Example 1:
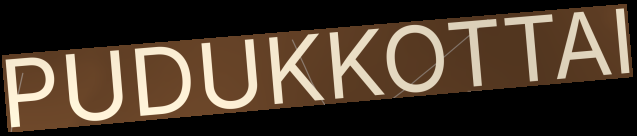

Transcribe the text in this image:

PUDUKKOTTAI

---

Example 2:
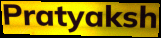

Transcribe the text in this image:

Pratyaksh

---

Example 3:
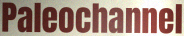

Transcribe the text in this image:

Paleochannel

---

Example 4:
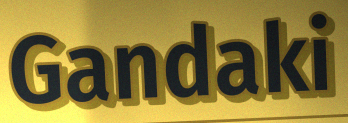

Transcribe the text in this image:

Gandaki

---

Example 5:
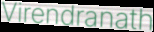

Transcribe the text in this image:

Virendranath